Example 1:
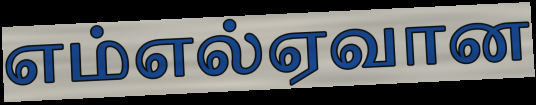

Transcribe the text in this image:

எம்எல்ஏவான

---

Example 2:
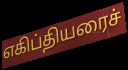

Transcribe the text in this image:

எகிப்தியரைச்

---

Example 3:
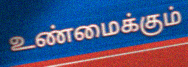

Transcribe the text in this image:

உண்மைக்கும்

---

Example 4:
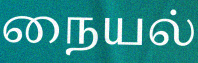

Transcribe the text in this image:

நையல்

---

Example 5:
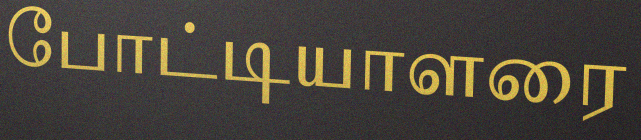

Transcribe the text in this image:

போட்டியாளரை